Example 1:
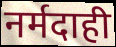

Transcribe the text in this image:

नर्मदाही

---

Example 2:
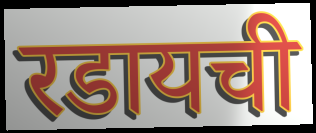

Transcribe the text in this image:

रडायची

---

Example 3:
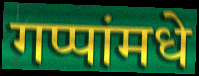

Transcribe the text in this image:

गप्पांमधे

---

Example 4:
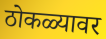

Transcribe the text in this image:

ठोकळ्यावर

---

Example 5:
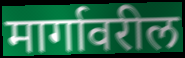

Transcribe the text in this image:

मार्गावरील